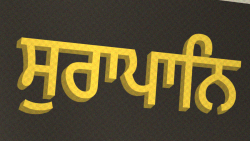
ਸੁਰਾਪਾਨਿ